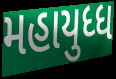
મહાયુધ્ધ